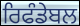
ਰਿਫੰਡੇਬਲ